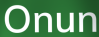
Onun